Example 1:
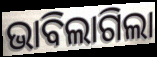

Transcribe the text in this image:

ଭାବିଲାଗିଲା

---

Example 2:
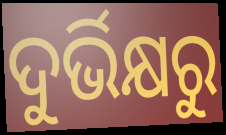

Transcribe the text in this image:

ଦୁର୍ଭିକ୍ଷରୁ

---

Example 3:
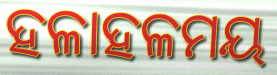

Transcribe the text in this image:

ହଳାହଳମୟ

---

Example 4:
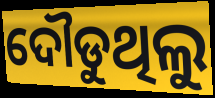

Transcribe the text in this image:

ଦୌଡୁଥିଲୁ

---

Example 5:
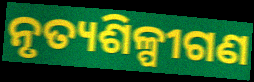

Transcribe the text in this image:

ନୃତ୍ୟଶିଳ୍ପୀଗଣ